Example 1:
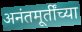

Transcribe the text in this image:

अनंतमूर्तींच्या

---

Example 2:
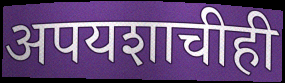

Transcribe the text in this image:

अपयशाचीही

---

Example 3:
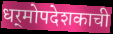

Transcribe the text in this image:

धर्मोपदेशकाची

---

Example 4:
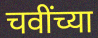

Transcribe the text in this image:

चवींच्या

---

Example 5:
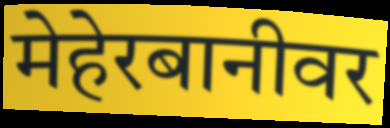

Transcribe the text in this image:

मेहेरबानीवर